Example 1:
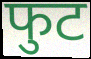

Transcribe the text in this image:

फुट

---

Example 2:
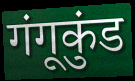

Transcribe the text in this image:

गंगूकुंड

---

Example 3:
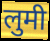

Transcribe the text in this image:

लुमी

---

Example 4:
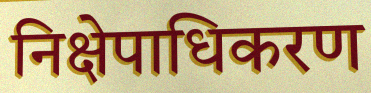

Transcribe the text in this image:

निक्षेपाधिकरण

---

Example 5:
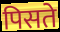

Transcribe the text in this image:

पिसते